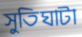
সুতিঘাটা